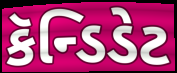
કૅન્ડિડેટ